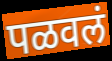
पळवलं